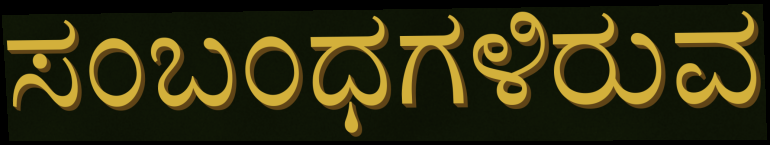
ಸಂಬಂಧಗಳಿರುವ